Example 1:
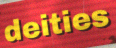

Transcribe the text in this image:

deities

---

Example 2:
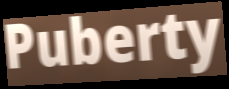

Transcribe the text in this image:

Puberty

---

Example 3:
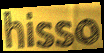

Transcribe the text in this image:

hisso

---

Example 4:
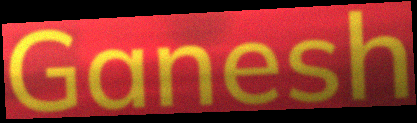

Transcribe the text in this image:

Ganesh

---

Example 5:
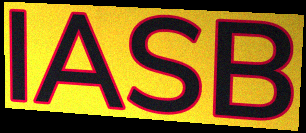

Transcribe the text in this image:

IASB